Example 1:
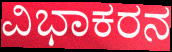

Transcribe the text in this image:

ವಿಭಾಕರನ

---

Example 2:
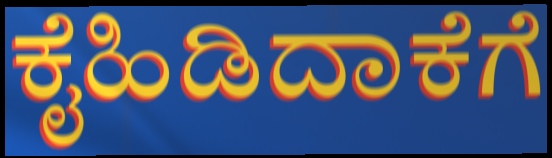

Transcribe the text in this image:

ಕೈಹಿಡಿದಾಕೆಗೆ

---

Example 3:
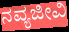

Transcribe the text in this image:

ನವ್ಯಜೀವಿ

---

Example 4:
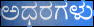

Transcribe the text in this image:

ಅಧರಗಳು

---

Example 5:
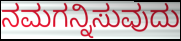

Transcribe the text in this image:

ನಮಗನ್ನಿಸುವುದು